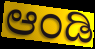
ಆಂಡಿ